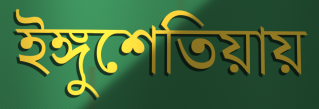
ইঙ্গুশেতিয়ায়